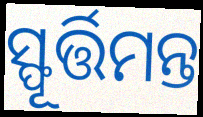
ସ୍ଫୂର୍ତ୍ତିମନ୍ତ